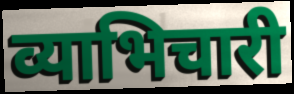
व्याभिचारी